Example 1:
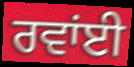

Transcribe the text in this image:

ਰਵਾਂਈ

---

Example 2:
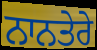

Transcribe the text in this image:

ਨਾਨਤੇਰੇ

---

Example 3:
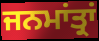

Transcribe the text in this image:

ਜਨਮਾਂਤ੍ਰਾਂ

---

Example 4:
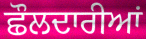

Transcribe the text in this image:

ਛੌਲਦਾਰੀਆਂ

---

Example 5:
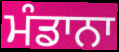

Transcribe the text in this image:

ਮੰਡਾਨਾ